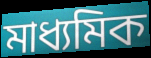
মাধ্যমিক